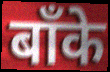
बाँके